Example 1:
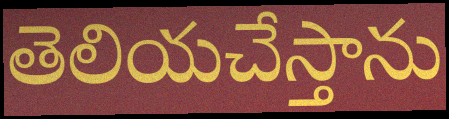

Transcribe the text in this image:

తెలియచేస్తాను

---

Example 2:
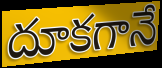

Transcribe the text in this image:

దూకగానే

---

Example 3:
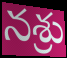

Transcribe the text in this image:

నశ్రు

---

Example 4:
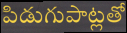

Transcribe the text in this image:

పిడుగుపాట్లతో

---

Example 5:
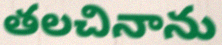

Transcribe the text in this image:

తలచినాను